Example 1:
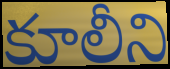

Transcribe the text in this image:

కూలీని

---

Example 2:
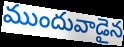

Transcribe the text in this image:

ముందువాడైన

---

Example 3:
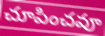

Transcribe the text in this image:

చూపించవూ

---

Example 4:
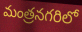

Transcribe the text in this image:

మంత్రనగరిలో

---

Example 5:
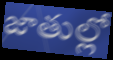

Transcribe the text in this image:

జాతుల్లో